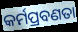
କର୍ମପ୍ରବଣତା